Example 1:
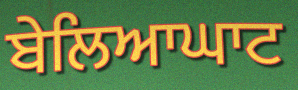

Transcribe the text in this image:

ਬੇਲਿਆਘਾਟ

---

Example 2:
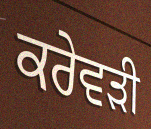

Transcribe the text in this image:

ਕਰੇਵੜੀ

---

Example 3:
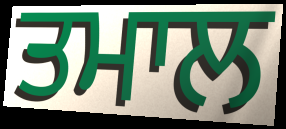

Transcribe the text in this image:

ਤਮਾਲ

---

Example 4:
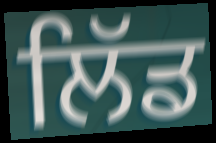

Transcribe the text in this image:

ਲਿੱਡ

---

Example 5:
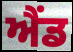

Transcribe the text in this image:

ਐੰਡ